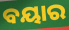
ବୟାର